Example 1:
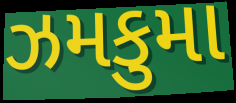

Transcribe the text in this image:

ઝમકુમા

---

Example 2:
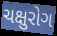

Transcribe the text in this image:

ચક્ષુરોગ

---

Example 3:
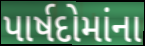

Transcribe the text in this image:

પાર્ષદોમાંના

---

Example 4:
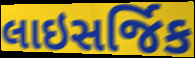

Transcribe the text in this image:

લાઇસર્જિક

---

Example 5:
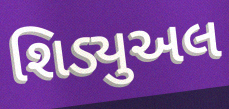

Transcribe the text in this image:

શિડ્યુઅલ